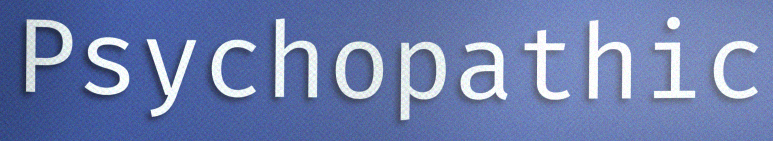
Psychopathic